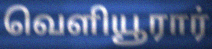
வெளியூரார்